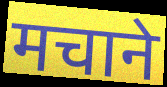
मचाने